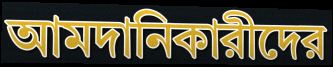
আমদানিকারীদের